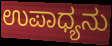
ಉಪಾಧ್ಯನು